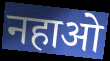
नहाओ